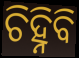
ଚିହ୍ନିବି